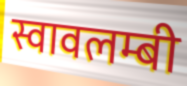
स्वावलम्बी